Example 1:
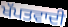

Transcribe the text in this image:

ਖੱਪਤਵਾਦੀ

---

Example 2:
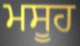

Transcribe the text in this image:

ਮਸੂਹ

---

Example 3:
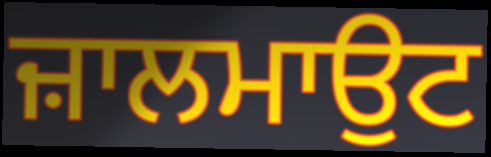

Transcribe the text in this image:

ਜ਼ਾਲਮਾਉਟ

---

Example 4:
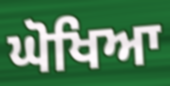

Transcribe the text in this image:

ਘੋਖਿਆ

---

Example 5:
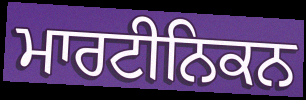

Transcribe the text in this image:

ਮਾਰਟੀਨਿਕਨ